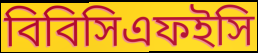
বিবিসিএফইসি